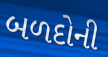
બળદોની